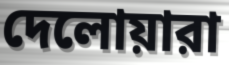
দেলোয়ারা